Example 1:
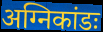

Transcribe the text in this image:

अग्निकांडः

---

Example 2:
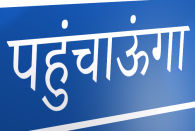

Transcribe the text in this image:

पहुंचाऊंगा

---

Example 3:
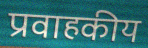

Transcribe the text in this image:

प्रवाहकीय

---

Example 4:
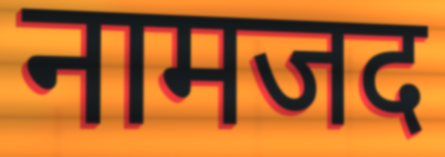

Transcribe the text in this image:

नामजद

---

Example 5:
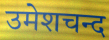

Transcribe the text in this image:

उमेशचन्द